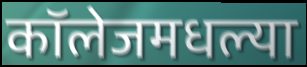
कॉलेजमधल्या